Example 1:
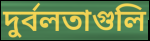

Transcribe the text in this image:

দুর্বলতাগুলি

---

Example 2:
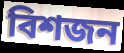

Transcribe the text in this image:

বিশজন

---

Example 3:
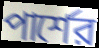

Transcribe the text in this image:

পার্শের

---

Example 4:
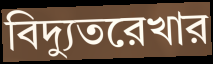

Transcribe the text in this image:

বিদ্যুতরেখার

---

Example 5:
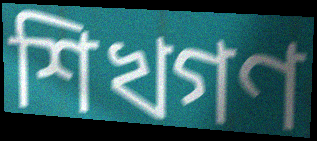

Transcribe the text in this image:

শিখগণ